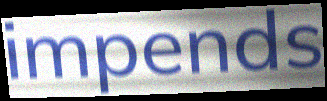
impends